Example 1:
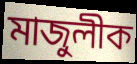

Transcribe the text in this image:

মাজুলীক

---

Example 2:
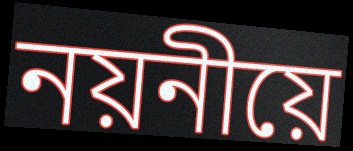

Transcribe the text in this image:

নয়নীয়ে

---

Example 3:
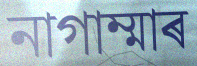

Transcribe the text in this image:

নাগাম্মাৰ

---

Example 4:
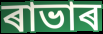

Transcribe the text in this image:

ৰাভাৰ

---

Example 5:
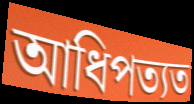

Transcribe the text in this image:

আধিপত্যত